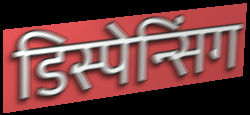
डिस्पेन्सिंग